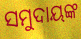
ସମୁଦାୟଙ୍କ